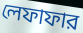
লেফাফার